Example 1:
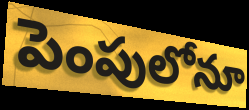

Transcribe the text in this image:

పెంపులోనూ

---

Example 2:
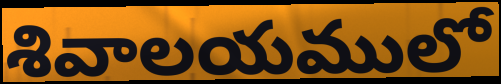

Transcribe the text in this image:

శివాలయములో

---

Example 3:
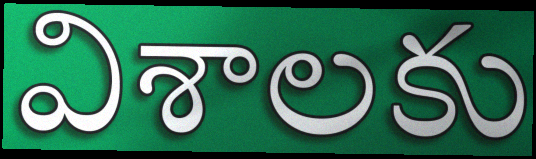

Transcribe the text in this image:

విశాలకు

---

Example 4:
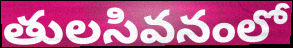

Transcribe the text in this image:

తులసివనంలో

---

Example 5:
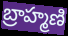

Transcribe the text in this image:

బ్రాహ్మణి